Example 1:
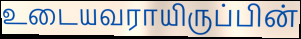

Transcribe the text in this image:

உடையவராயிருப்பின்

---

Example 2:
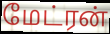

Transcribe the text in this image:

மேட்ரன்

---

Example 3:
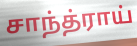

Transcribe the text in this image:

சாந்த்ராய்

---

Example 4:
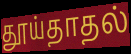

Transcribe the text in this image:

தூய்தாதல்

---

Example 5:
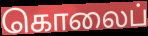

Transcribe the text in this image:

கொலைப்